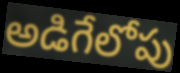
అడిగేలోపు